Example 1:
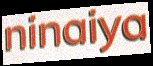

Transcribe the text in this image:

ninaiya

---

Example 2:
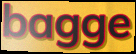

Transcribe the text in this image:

bagge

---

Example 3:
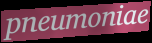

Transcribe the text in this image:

pneumoniae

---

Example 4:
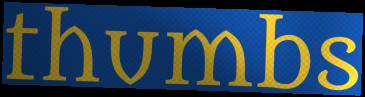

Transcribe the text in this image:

thumbs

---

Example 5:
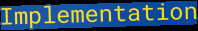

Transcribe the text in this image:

Implementation